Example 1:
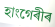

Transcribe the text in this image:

হাংগেৰীৰ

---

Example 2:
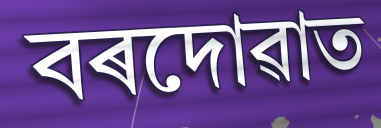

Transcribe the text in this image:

বৰদোৱাত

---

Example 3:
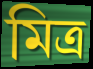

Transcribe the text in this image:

মিত্ৰ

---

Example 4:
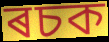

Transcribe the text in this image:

ৰচক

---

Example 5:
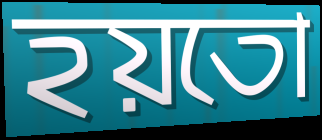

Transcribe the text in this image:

হয়তো